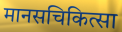
मानसचिकित्सा